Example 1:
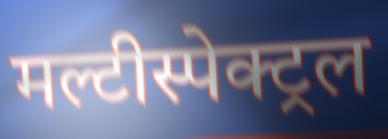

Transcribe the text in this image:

मल्टीस्पेक्ट्रल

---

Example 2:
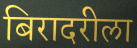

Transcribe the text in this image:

बिरादरीला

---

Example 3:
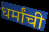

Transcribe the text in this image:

धर्मांची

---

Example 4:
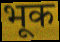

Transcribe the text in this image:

भूक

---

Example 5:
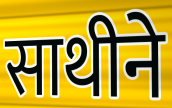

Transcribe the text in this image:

साथीने